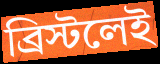
ব্রিস্টলেই